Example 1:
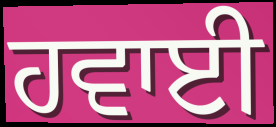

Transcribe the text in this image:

ਹਵਾਈ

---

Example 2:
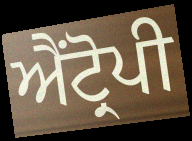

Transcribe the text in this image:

ਐਂਟ੍ਰੋਪੀ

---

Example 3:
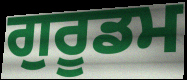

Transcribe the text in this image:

ਗੁਰੂਡਮ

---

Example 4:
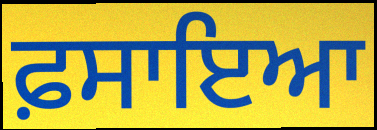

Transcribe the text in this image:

ਫ਼ਸਾਇਆ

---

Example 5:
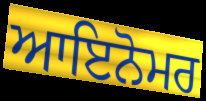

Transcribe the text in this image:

ਆਇਨੋਮਰ